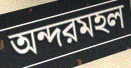
অন্দরমহল